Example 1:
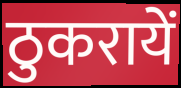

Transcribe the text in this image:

ठुकरायें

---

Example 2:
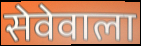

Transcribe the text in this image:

सेवेवाला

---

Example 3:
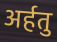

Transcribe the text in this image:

अर्हतु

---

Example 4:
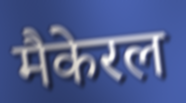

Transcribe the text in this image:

मैकेरल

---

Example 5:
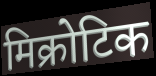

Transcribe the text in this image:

मिक्रोटिक